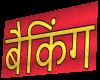
बैकिंग